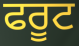
ਫਰੂਟ